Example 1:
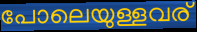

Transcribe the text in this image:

പോലെയുള്ളവര്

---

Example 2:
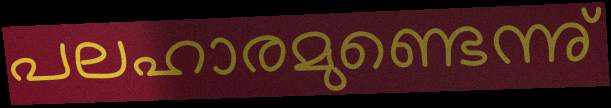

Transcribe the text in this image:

പലഹാരമുണ്ടെന്നു്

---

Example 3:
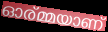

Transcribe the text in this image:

ഓര്മ്മയാണ്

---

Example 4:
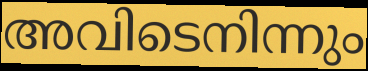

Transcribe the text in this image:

അവിടെനിന്നും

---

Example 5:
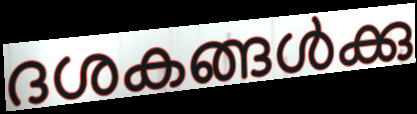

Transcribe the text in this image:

ദശകങ്ങൾക്കു